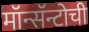
मॉन्सॅन्टोची